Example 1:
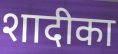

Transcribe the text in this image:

शादीका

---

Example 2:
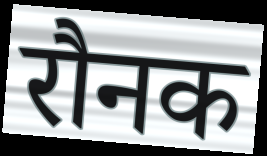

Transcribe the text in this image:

रौनक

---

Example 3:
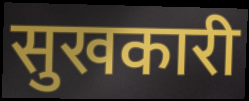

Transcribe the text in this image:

सुखकारी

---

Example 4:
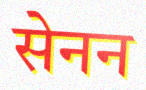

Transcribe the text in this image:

सेनन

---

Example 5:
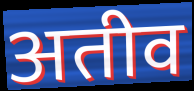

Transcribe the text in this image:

अतीव